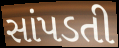
સાંપડતી